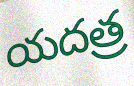
యదత్ర